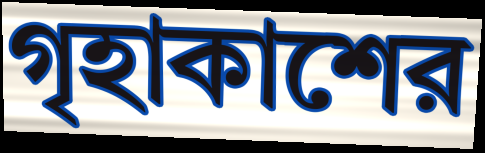
গৃহাকাশের